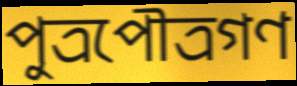
পুত্রপৌত্রগণ